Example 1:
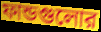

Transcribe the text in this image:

ফান্ডগুলোর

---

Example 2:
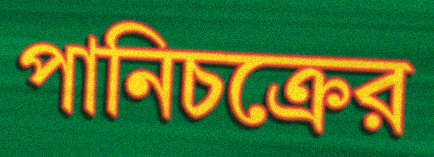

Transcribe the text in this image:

পানিচক্রের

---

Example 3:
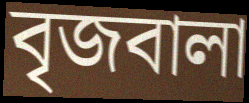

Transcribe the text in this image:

বৃজবালা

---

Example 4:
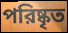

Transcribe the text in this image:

পরিষ্কৃত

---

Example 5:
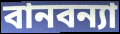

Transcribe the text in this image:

বানবন্যা